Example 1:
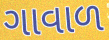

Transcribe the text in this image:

ગાવાળ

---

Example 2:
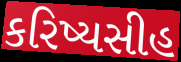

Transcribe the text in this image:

કરિષ્યસીહ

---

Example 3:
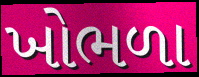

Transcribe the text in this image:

ખોભળા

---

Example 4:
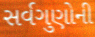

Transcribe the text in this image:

સર્વગુણોની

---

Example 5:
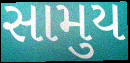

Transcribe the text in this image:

સામુય